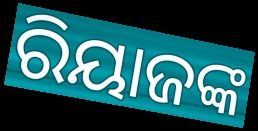
ରିୟାଜଙ୍କ